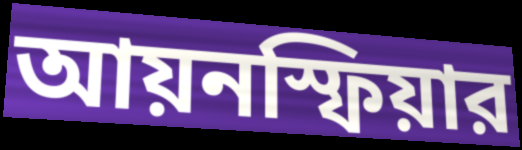
আয়নস্ফিয়ার